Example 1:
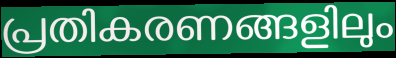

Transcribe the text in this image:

പ്രതികരണങ്ങളിലും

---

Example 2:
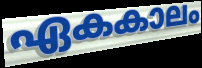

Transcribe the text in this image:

ഏകകാലം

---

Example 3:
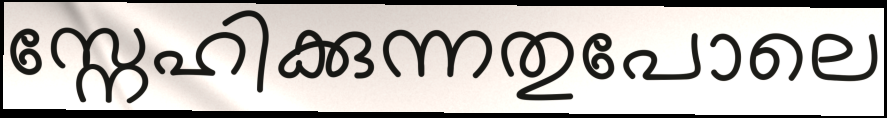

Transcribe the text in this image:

സ്നേഹിക്കുന്നതുപോലെ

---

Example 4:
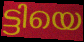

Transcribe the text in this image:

ട്ടിയെ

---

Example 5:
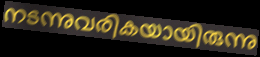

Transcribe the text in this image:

നടന്നുവരികയായിരുന്നു